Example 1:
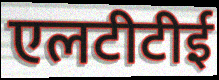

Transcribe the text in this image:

एलटीटीई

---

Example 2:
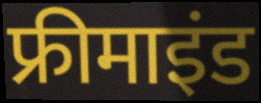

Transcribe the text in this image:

फ्रीमाइंड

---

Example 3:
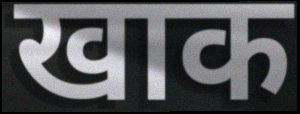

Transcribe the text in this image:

खाक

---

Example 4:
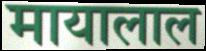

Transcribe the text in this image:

मायालाल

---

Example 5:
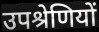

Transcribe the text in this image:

उपश्रेणियों